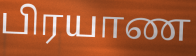
பிரயாண